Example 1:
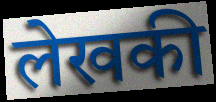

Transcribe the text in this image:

लेखकी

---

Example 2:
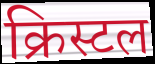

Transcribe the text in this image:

क्रिस्टल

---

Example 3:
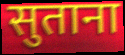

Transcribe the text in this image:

सुताना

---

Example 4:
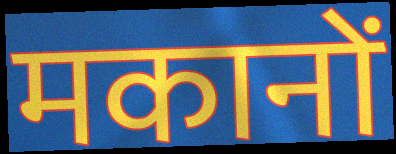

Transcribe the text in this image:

मकानों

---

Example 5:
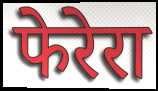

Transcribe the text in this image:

फेरेरा